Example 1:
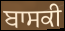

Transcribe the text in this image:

ਬਾਸਕੀ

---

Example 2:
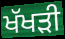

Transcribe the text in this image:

ਖੱਖੜੀ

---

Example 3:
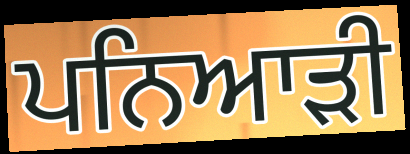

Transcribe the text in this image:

ਪਨਿਆੜੀ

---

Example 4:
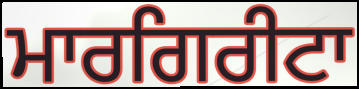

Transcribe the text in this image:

ਮਾਰਗਿਰੀਟਾ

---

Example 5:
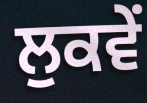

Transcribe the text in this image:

ਲੁਕਵੇਂ